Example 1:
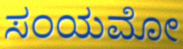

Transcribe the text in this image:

ಸಂಯಮೋ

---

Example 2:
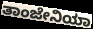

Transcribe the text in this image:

ತಾಂಜೇನಿಯಾ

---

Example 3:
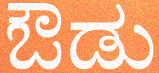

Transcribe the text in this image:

ಔಡು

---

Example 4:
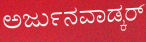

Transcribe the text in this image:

ಅರ್ಜುನವಾಡ್ಕರ್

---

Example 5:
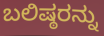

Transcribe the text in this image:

ಬಲಿಷ್ಠರನ್ನು